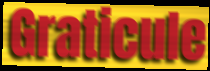
Graticule